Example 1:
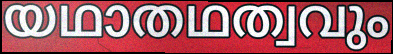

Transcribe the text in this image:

യഥാതഥത്വവും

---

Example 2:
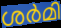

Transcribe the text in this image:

ശർമി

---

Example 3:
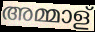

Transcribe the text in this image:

അമ്മാള്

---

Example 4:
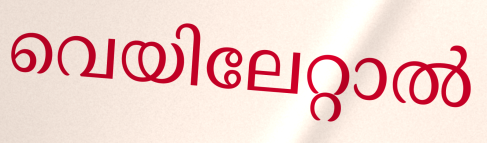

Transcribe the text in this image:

വെയിലേറ്റാൽ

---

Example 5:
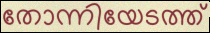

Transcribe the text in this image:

തോന്നിയേടത്ത്